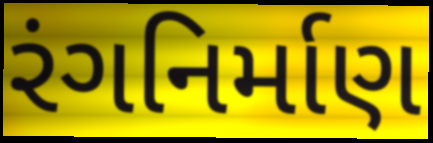
રંગનિર્માણ